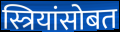
स्त्रियांसोबत